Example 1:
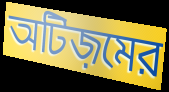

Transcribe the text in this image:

অটিজ়মের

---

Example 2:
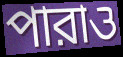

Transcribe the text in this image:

পারাও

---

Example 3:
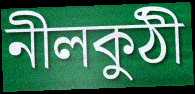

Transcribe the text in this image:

নীলকুঠী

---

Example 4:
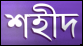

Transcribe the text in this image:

শহীদ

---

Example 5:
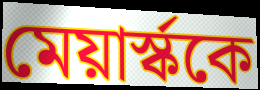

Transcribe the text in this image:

মেয়ার্স্ককে